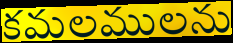
కమలములను